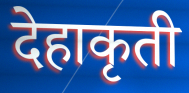
देहाकृती